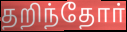
தறிந்தோர்